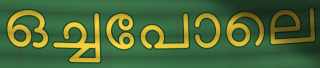
ഒച്ചപോലെ